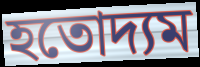
হতোদ্যম